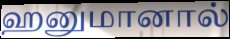
ஹனுமானால்